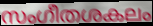
സംഗീതശകലം